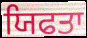
ਯਿਫਤਾ